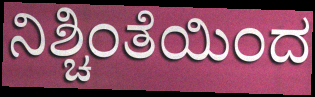
ನಿಶ್ಚಿಂತೆಯಿಂದ